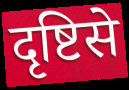
दृष्टिसे